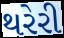
થરેરી